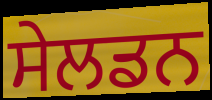
ਸੇਲਡਨ